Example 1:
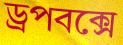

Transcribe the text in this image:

ড্রপবক্সে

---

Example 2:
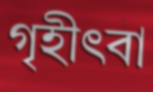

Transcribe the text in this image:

গৃহীৎবা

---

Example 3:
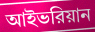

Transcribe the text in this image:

আইভরিয়ান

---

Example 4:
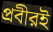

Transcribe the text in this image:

প্রবীরই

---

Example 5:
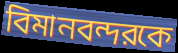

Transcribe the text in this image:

বিমানবন্দরকে